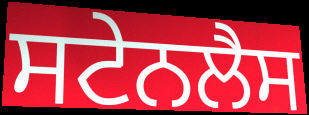
ਸਟੇਨਲੈਸ